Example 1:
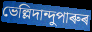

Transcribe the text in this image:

ভেল্লিদান্দুপাৰুৰ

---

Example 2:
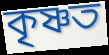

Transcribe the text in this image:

কৃষ্ণত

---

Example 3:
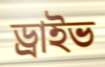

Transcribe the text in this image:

ড্ৰাইভ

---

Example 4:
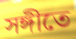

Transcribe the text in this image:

সঙ্গীতে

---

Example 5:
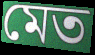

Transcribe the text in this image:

মেত